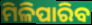
ମିଳିପାରିବ